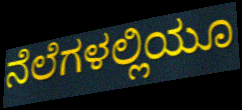
ನೆಲೆಗಳಲ್ಲಿಯೂ